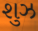
શુઝ